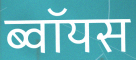
ब्वॉयस